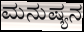
ಮನುಷ್ಯನ